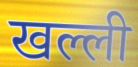
खल्ली